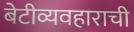
बेटीव्यवहाराची